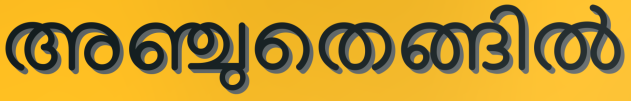
അഞ്ചുതെങ്ങിൽ